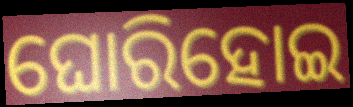
ଘୋରିହୋଇ